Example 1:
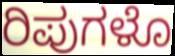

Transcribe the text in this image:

ರಿಪುಗಳೊ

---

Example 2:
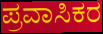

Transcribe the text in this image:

ಪ್ರವಾಸಿಕರ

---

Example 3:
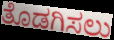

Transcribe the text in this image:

ತೊಡಗಿಸಲು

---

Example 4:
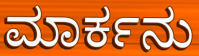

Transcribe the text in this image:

ಮಾರ್ಕನು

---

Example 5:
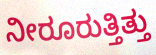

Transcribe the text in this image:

ನೀರೂರುತ್ತಿತ್ತು